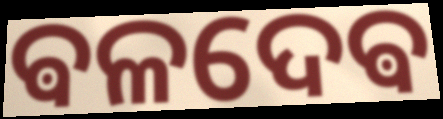
ଵଳଦେଵ